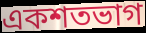
একশতভাগ